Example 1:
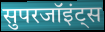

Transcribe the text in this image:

सुपरजॉइंट्स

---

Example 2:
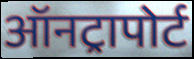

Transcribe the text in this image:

ऑनट्रापोर्ट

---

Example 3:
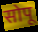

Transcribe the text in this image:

सोपू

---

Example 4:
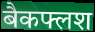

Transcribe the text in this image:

बैकफ्लश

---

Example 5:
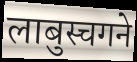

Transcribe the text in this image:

लाबुस्चगने